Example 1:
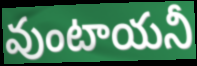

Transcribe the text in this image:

వుంటాయనీ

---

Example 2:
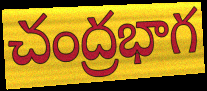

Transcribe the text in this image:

చంద్రభాగ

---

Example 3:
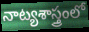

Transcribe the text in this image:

నాట్యశాస్త్రంలో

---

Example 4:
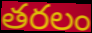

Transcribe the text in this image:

తరలం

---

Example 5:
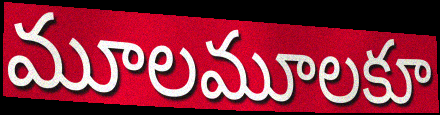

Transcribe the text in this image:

మూలమూలకూ